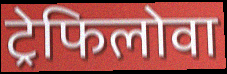
ट्रेफिलोवा